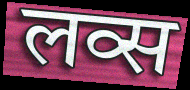
लव्स